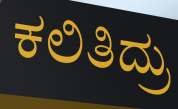
ಕಲಿತಿದ್ರು